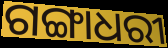
ଗଙ୍ଗାଧରୀ